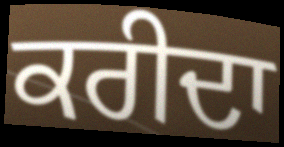
ਕਰੀਦਾ